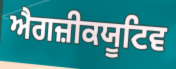
ਐਗਜ਼ੀਕਯੂਟਿਵ